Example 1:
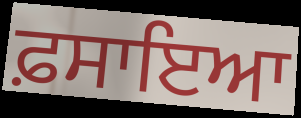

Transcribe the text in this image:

ਫ਼ਸਾਇਆ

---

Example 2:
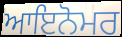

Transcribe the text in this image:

ਆਇਨੋਮਰ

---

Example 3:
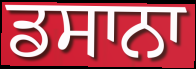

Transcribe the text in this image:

ਡਸਾਨਾ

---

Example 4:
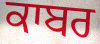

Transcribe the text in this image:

ਕਾਬਰ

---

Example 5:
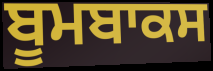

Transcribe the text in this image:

ਬੂਮਬਾਕਸ